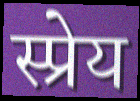
स्प्रेय